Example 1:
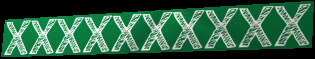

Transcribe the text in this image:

XXXXXXXXXX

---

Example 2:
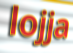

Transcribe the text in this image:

lojja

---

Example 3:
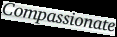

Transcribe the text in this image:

Compassionate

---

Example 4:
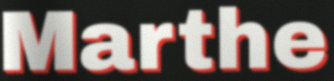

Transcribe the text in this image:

Marthe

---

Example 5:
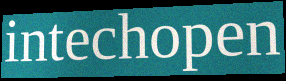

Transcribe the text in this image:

intechopen